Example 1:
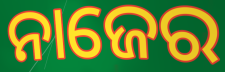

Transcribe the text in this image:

ନାଜେର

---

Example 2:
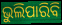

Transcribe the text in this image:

ଭୁଲିପାରିବି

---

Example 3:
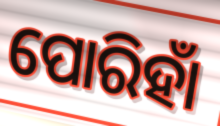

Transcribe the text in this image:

ପୋରିହାଁ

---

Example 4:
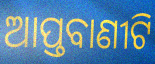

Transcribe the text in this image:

ଆପ୍ତବାଣୀଟି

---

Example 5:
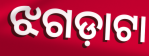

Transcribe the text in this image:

ଝଗଡ଼ାଟା